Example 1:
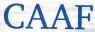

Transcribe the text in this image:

CAAF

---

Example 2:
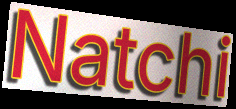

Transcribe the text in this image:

Natchi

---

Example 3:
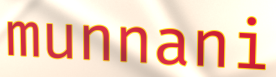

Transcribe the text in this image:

munnani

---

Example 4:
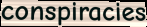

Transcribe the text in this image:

conspiracies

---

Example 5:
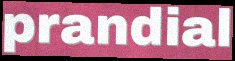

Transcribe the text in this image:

prandial